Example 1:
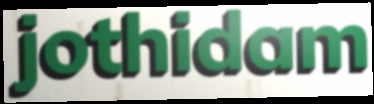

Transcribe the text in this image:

jothidam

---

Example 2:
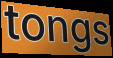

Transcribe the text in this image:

tongs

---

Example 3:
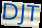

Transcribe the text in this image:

DJT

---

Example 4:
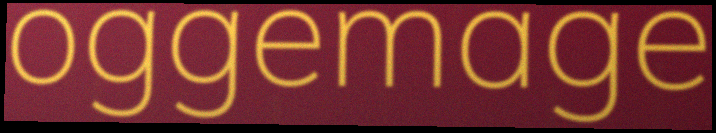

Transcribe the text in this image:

oggemage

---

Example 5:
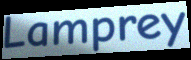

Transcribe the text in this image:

Lamprey